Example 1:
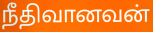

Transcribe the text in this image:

நீதிவானவன்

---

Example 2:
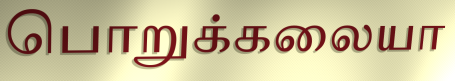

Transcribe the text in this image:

பொறுக்கலையா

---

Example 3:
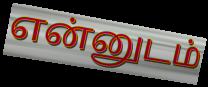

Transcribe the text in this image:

என்னுடம்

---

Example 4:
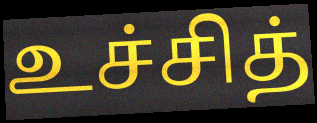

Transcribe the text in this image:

உச்சித்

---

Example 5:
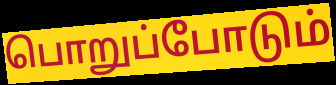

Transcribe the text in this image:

பொறுப்போடும்